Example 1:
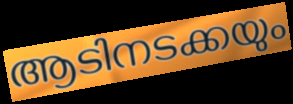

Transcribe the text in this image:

ആടിനടക്കയും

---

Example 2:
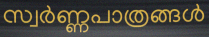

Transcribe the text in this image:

സ്വർണ്ണപാത്രങ്ങൾ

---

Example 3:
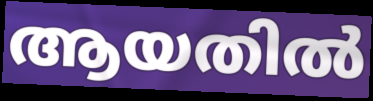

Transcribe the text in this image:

ആയതിൽ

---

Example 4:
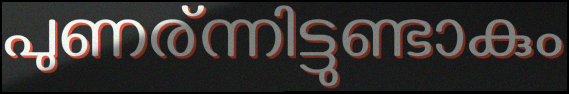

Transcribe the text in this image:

പുണര്ന്നിട്ടുണ്ടാകും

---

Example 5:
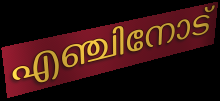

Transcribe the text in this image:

എഞ്ചിനോട്